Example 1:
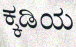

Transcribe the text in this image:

ಕ್ಕಡಿಯ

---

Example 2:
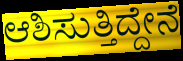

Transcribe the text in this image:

ಆಶಿಸುತ್ತಿದ್ದೇನೆ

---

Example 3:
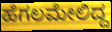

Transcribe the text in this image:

ಹೆಗಲಮೇಲಿದ್ದ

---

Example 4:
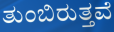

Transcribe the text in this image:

ತುಂಬಿರುತ್ತವೆ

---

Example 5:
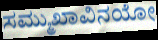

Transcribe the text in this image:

ಸಮ್ಮುಖಾವಿನಯೋ